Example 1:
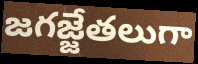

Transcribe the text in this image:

జగజ్జేతలుగా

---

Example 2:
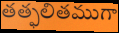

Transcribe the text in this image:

తత్ఫలితముగా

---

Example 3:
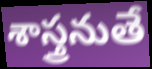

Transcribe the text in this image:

శాస్త్రనుతే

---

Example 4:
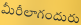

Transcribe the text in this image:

మీరీలాగందురు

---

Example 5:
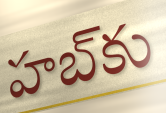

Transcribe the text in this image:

హబ్‌కు